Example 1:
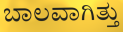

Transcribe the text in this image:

ಬಾಲವಾಗಿತ್ತು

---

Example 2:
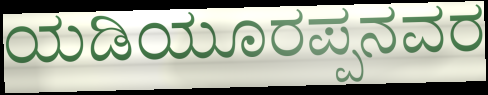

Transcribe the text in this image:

ಯಡಿಯೂರಪ್ಪನವರ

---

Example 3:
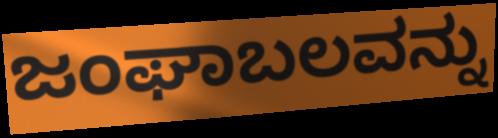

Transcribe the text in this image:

ಜಂಘಾಬಲವನ್ನು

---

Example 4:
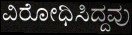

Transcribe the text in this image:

ವಿರೋಧಿಸಿದ್ದವು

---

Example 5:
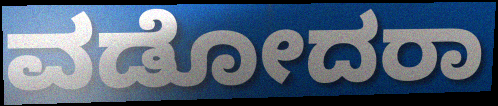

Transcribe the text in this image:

ವಡೋದರಾ